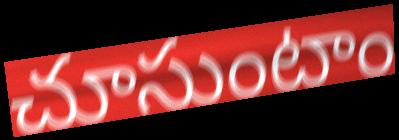
చూసుంటాం